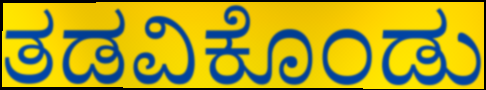
ತಡವಿಕೊಂಡು